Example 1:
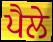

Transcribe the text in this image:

ਪੈਲੇ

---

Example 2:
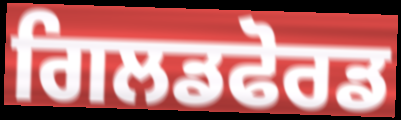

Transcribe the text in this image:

ਗਿਲਡਫੋਰਡ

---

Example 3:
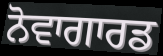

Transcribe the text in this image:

ਨੋਵਾਗਾਰਡ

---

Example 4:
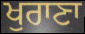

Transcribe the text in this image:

ਖੁਰਾਣਾ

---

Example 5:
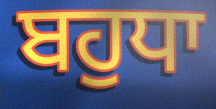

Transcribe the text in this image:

ਬਹੁਧਾ